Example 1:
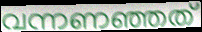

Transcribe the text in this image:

വന്നണഞ്ഞത്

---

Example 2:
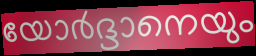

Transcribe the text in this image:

യോർദ്ദാനെയും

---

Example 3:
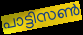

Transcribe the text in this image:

പാട്ടിസൺ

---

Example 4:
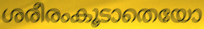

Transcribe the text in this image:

ശരീരംകൂടാതെയോ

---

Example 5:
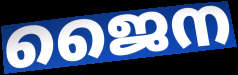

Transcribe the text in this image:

ജൈന